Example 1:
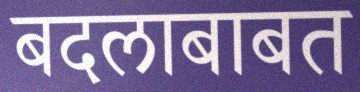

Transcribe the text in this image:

बदलाबाबत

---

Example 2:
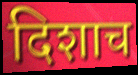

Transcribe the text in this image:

दिशाच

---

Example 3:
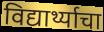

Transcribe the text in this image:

विद्यार्थ्याचा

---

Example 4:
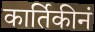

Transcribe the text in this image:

कार्तिकीनं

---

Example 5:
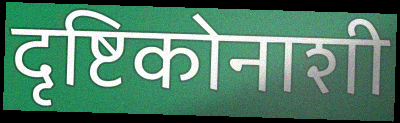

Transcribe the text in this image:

दृष्टिकोनाशी